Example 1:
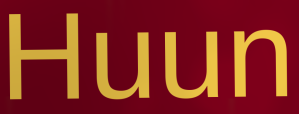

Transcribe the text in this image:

Huun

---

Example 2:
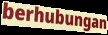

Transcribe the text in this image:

berhubungan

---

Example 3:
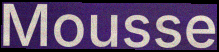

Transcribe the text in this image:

Mousse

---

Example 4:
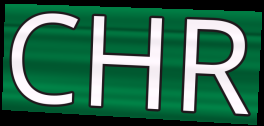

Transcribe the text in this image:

CHR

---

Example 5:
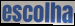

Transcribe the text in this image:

escolha